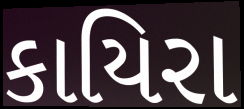
કાયિરા